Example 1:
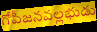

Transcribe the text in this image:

గోపీజనవల్లభుడు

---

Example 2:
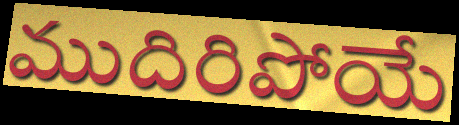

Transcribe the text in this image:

ముదిరిపోయే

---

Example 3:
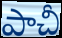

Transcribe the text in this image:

పాచీ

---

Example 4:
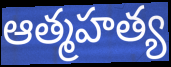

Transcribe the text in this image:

ఆత్మహత్య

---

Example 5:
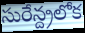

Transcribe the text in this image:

సురేన్ద్రలోక